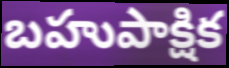
బహుపాక్షిక